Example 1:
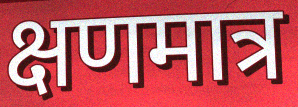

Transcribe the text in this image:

क्षणमात्र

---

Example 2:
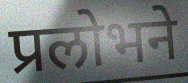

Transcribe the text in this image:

प्रलोभने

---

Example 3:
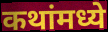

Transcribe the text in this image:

कथांमध्ये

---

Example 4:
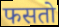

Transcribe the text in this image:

फसतो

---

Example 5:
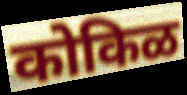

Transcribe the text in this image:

कोकिळ